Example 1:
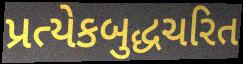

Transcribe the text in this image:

પ્રત્યેકબુદ્ધચરિત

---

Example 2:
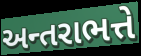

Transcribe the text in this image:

અન્તરાભત્તે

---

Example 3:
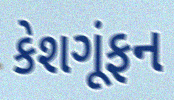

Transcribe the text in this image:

કેશગૂંફન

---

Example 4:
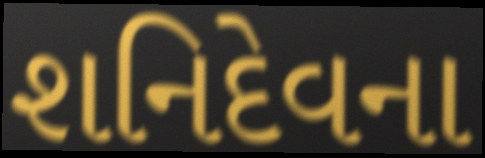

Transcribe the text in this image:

શનિદેવના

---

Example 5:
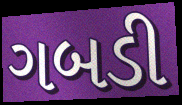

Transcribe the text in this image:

ગબડી